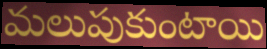
మలుపుకుంటాయి